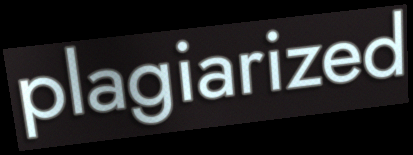
plagiarized